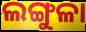
ଲଙ୍ଗୁଳା